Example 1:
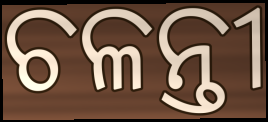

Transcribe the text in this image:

ଚଳନ୍ତୀ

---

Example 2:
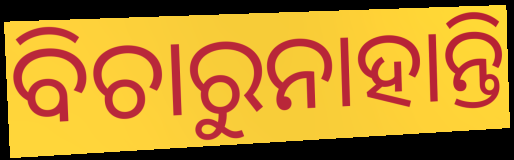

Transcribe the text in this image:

ବିଚାରୁନାହାନ୍ତି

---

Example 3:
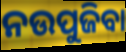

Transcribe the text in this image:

ନଉପୁଜିବା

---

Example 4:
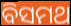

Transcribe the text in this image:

ବିସମଥ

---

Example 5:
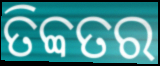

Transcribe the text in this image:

ତିବ୍ବତର